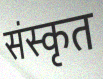
संस्कृत